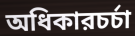
অধিকারচর্চা